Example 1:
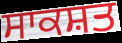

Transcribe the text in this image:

ਸਾਕਸ਼ਤ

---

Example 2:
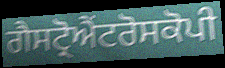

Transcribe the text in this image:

ਗੈਸਟ੍ਰੋਐਂਟਰੋਸਕੋਪੀ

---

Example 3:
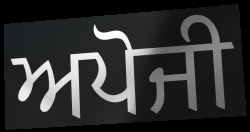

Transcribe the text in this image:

ਅਪੋਜੀ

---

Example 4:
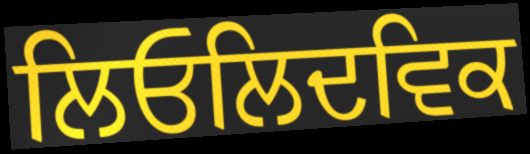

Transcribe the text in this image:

ਲਿਓਲਿਦਵਿਕ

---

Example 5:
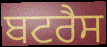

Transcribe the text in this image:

ਬਟਰੈਸ